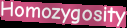
Homozygosity